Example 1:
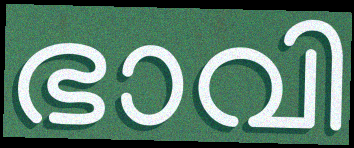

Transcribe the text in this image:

ഭാവി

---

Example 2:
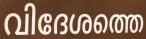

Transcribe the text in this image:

വിദേശത്തെ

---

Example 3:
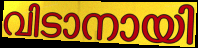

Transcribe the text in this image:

വിടാനായി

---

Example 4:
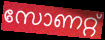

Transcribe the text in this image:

സോണറ്റ്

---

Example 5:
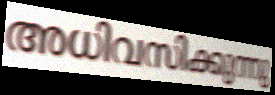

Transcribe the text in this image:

അധിവസിക്കുന്നു